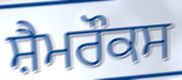
ਸ਼ੈਮਰੌਕਸ